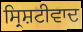
ਸ੍ਰਿਸ਼ਟੀਵਾਦ